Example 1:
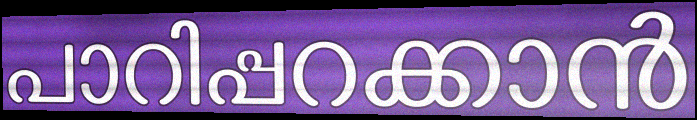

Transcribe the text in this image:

പാറിപ്പറക്കാൻ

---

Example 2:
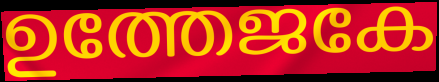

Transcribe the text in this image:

ഉത്തേജകേ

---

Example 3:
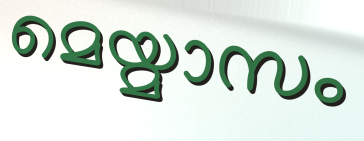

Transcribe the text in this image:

മെയ്മാസം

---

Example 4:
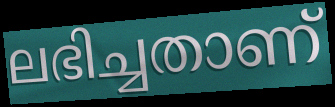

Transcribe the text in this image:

ലഭിച്ചതാണ്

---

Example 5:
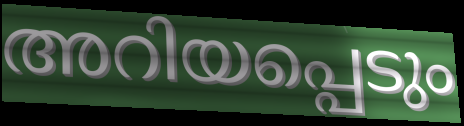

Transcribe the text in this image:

അറിയപ്പെടും